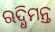
ଋଦ୍ଧିମନ୍ତ